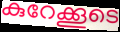
കുറേക്കൂടെ